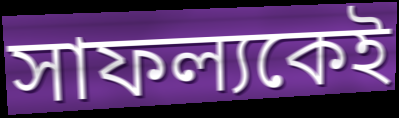
সাফল্যকেই